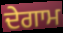
ਦੇਗਾਮ